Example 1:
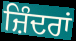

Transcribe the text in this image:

ਜ਼ਿੰਦਰਾਂ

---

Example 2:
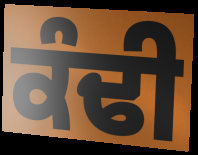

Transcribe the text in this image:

ਕੰਢੀ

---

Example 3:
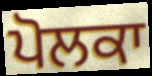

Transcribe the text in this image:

ਪੋਲਕਾ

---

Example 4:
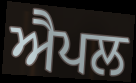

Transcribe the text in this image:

ਐਪਲ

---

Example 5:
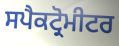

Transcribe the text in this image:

ਸਪੈਕਟ੍ਰੋਮੀਟਰ